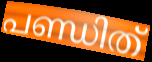
പണ്ഡിത്